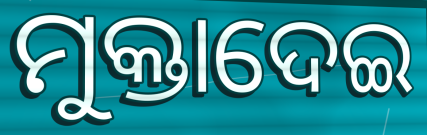
ମୁକ୍ତାଦେଇ